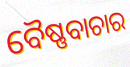
ବୈଷ୍ଣବାଚାର